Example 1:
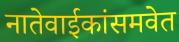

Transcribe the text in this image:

नातेवाईकांसमवेत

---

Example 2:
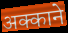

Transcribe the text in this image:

अक्काने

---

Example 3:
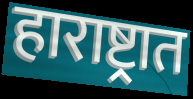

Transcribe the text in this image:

हाराष्ट्रात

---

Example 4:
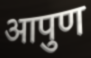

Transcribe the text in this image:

आपुण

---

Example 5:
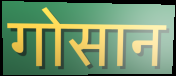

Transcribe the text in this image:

गोसान